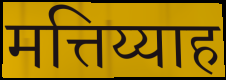
मत्तिय्याह